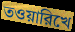
তওয়ারিখে